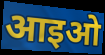
आइओ